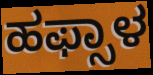
ಹಫ್ಸಾಳ